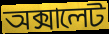
অক্সালেট